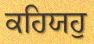
ਕਹਿਯਹੁ